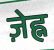
ज़ेह्न